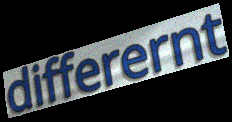
differernt